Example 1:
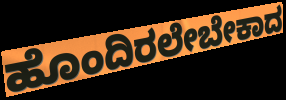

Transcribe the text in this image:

ಹೊಂದಿರಲೇಬೇಕಾದ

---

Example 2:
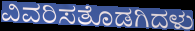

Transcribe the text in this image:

ವಿವರಿಸತೊಡಗಿದಳು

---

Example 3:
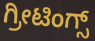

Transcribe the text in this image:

ಗ್ರೀಟಿಂಗ್ಸ್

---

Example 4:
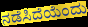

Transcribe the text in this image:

ನಡೆಸಿದೆಯೆಂದು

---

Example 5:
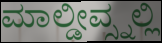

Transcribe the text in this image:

ಮಾಲ್ಡೀವ್ಸ್ನಲ್ಲಿ